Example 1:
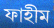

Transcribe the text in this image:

ফাহীম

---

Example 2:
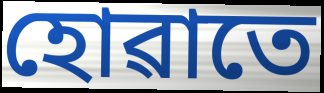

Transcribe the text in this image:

হোৱাতে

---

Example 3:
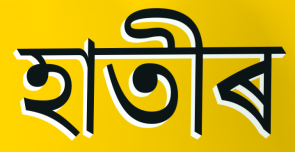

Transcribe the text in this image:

হাতীৰ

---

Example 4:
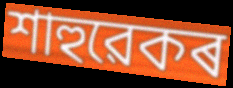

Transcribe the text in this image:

শাহুৱেকৰ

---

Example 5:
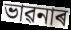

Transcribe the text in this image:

ভাৱনাৰ